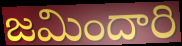
జమిందారి